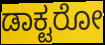
ಡಾಕ್ಟರೋ